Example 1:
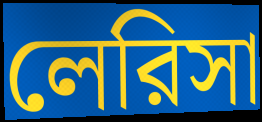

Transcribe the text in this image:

লেরিসা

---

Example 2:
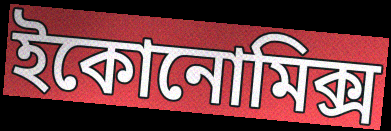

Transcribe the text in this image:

ইকোনোমিক্স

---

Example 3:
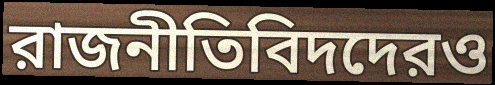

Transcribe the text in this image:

রাজনীতিবিদদেরও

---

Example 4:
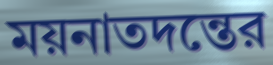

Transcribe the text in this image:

ময়নাতদন্তের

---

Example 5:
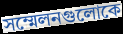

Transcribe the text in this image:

সম্মেলনগুলোকে